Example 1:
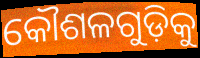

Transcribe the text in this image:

କୌଶଳଗୁଡ଼ିକୁ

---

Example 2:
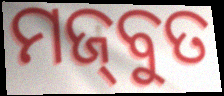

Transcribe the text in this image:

ମଜ୍‌ବୁତ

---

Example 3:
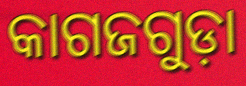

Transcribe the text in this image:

କାଗଜଗୁଡ଼ା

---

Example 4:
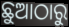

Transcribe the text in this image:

ଛୁଆଠାରୁ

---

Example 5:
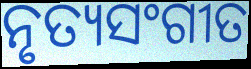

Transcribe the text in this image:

ନୃତ୍ୟସଂଗୀତ